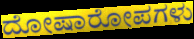
ದೋಷಾರೋಪಗಳು